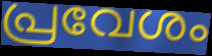
പ്രവേശം